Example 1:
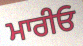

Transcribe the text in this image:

ਮਾਰੀਓ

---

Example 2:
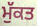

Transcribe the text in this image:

ਮੁੱਕਤ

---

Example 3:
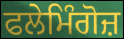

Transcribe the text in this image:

ਫਲੇਮਿੰਗੋਜ਼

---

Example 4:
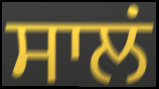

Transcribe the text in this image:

ਸਾਲਂ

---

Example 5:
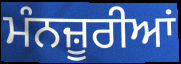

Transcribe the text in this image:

ਮੰਨਜ਼ੂਰੀਆਂ